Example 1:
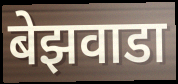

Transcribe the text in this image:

बेझवाडा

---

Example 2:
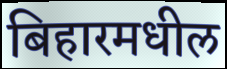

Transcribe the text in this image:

बिहारमधील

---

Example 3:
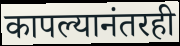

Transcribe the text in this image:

कापल्यानंतरही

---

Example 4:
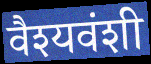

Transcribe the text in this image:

वैश्यवंशी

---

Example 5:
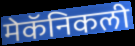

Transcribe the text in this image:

मेकॅनिकली